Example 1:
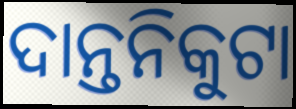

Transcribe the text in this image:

ଦାନ୍ତନିକୁଟା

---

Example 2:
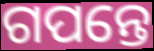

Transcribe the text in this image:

ଗପନ୍ତେ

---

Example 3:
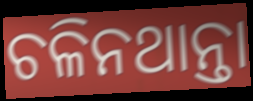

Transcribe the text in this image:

ଚଳିନଥାନ୍ତା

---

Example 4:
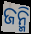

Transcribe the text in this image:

ଜନ୍ମି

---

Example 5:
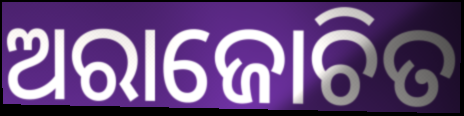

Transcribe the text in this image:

ଅରାଜୋଚିତ